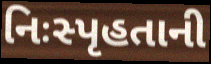
નિઃસ્પૃહતાની